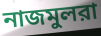
নাজমুলরা